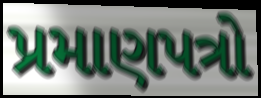
પ્રમાણપત્રો